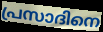
പ്രസാദിനെ